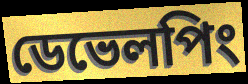
ডেভেলপিং